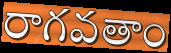
రాగవతాం